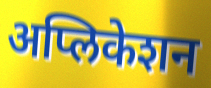
अप्लिकेशन